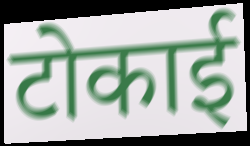
टोकाई